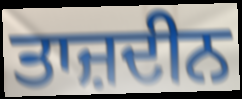
ਤਾਜ਼ਦੀਨ